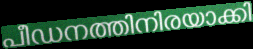
പീഡനത്തിനിരയാക്കി